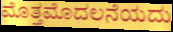
ಮೊತ್ತಮೊದಲನೆಯದು